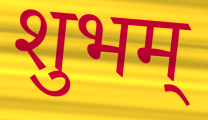
शुभम्